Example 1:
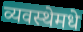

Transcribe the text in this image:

व्यवस्थेमधे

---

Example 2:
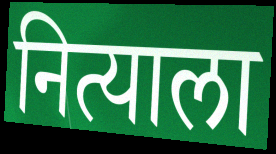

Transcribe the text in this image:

नित्याला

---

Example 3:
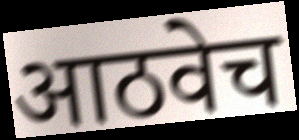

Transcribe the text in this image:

आठवेच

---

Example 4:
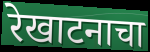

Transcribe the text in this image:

रेखाटनाचा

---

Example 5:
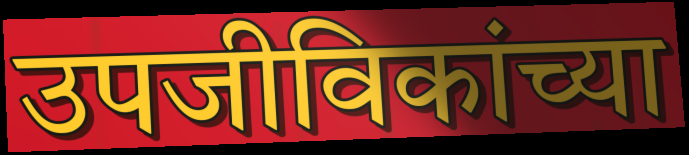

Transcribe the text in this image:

उपजीविकांच्या